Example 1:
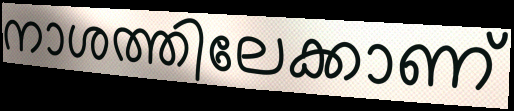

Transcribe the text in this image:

നാശത്തിലേക്കാണ്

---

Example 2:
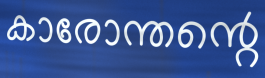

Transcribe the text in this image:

കാരോന്തന്റെ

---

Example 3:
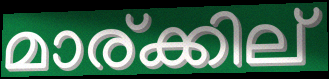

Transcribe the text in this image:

മാര്ക്കില്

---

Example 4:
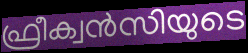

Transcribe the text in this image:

ഫ്രീക്വൻസിയുടെ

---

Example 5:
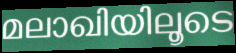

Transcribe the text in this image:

മലാഖിയിലൂടെ